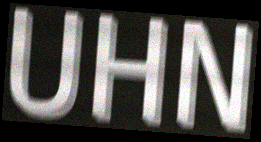
UHN